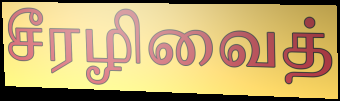
சீரழிவைத்